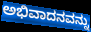
ಅಭಿವಾದನವನ್ನು